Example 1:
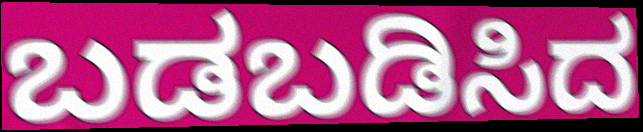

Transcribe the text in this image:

ಬಡಬಡಿಸಿದ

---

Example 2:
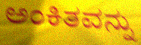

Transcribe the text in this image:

ಅಂಕಿತವನ್ನು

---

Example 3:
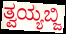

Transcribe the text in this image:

ತ್ವಯ್ಯಬ್ಜಿ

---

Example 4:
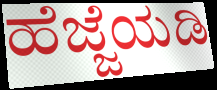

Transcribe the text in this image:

ಹೆಜ್ಜೆಯಡಿ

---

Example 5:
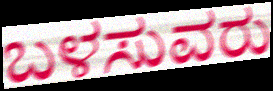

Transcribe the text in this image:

ಬಳಸುವರು